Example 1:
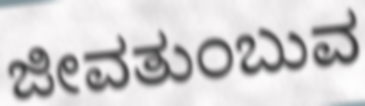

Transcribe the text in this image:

ಜೀವತುಂಬುವ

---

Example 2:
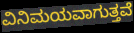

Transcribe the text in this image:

ವಿನಿಮಯವಾಗುತ್ತವೆ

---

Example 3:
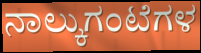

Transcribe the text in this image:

ನಾಲ್ಕುಗಂಟೆಗಳ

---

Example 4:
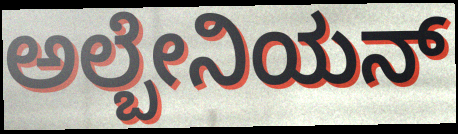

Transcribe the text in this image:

ಅಲ್ಬೇನಿಯನ್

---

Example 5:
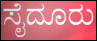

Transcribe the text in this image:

ಸೈದೂರು